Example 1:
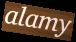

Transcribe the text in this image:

alamy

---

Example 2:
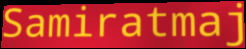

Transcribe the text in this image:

Samiratmaj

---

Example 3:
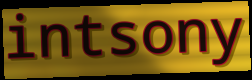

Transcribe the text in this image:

intsony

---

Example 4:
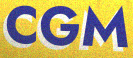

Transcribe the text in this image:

CGM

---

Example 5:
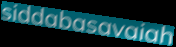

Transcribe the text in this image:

siddabasavaiah